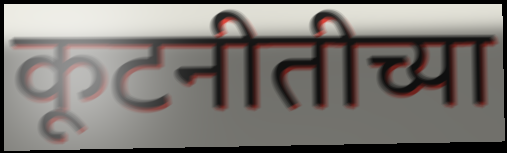
कूटनीतीच्या